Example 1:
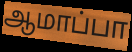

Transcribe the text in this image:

ஆமாப்பா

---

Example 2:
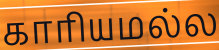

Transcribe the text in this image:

காரியமல்ல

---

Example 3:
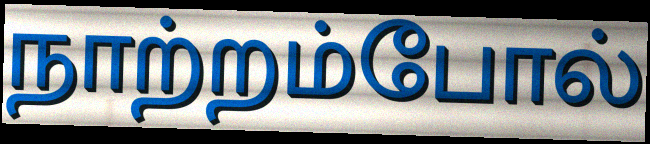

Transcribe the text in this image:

நாற்றம்போல்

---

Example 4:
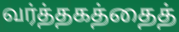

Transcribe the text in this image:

வர்த்தகத்தைத்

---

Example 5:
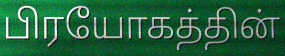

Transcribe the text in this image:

பிரயோகத்தின்